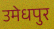
उमेधपुर